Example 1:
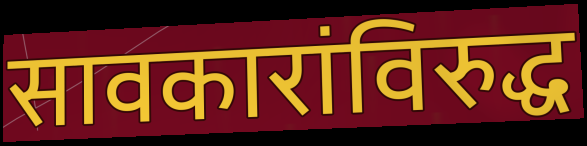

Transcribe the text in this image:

सावकारांविरुद्ध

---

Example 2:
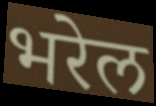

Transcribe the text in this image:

भरेल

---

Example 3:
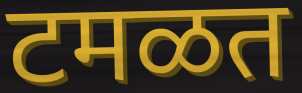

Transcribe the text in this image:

टमळत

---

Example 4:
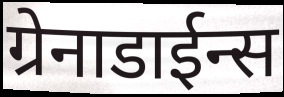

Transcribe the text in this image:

ग्रेनाडाईन्स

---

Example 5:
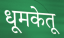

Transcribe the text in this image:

धूमकेतू